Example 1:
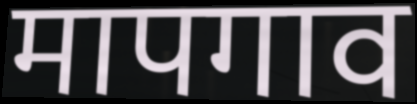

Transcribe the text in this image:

मापगाव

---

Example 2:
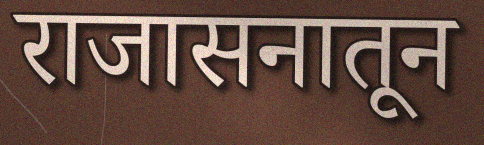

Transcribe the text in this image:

राजासनातून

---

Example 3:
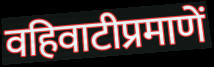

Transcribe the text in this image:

वहिवाटीप्रमाणें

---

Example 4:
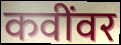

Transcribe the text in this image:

कवींवर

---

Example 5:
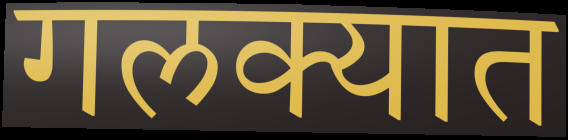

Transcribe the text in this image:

गलक्यात